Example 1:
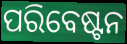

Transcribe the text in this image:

ପରିବେଷ୍ଟନ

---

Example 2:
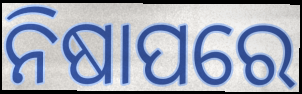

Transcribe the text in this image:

ନିଷାପରେ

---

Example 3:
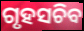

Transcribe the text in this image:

ଗୃହସଚିବ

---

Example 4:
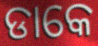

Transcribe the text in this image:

ଡାକେ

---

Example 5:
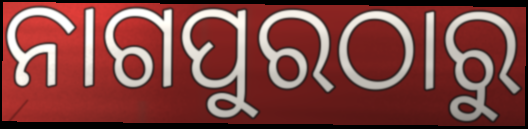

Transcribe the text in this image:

ନାଗପୁରଠାରୁ